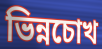
ভিন্নচোখ